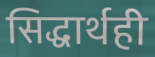
सिद्धार्थही